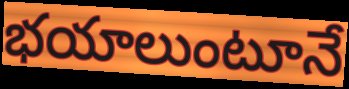
భయాలుంటూనే